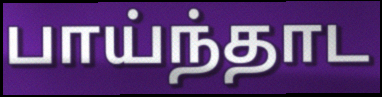
பாய்ந்தாட